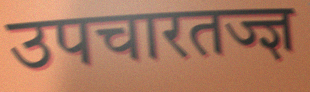
उपचारतज्ज्ञ